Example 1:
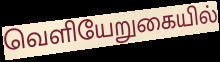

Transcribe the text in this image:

வெளியேறுகையில்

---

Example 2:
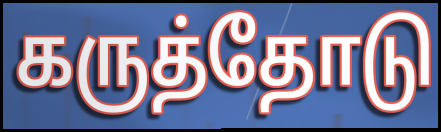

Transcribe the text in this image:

கருத்தோடு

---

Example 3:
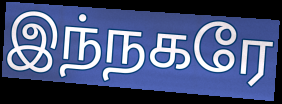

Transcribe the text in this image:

இந்நகரே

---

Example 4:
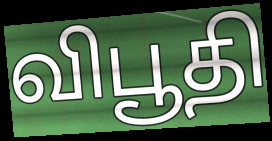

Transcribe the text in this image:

விபூதி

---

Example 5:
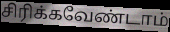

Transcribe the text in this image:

சிரிக்கவேண்டாம்